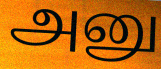
அனு